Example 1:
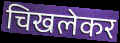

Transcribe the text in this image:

चिखलेकर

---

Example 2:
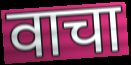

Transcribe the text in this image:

वाचा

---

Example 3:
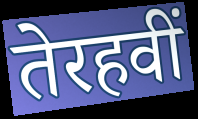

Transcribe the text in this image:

तेरहवीं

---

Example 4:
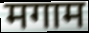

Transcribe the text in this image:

मगाम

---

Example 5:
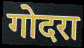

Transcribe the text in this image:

गोदरा